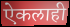
ऐकलाही